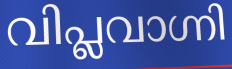
വിപ്ലവാഗ്നി